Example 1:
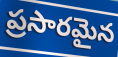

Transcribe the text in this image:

ప్రసారమైన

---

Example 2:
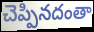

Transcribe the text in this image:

చెప్పినదంతా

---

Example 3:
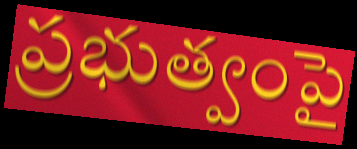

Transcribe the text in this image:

ప్రభుత్వంపై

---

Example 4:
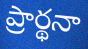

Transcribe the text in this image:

ప్రార్థనా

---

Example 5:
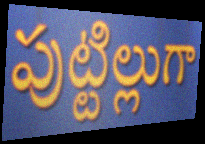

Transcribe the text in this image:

పుట్టిల్లుగా